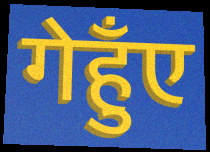
गेहुँए